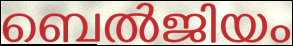
ബെൽജിയം